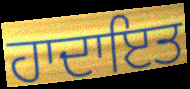
ਹਾਦਾਇਤ